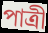
পাত্রী